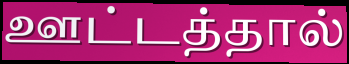
ஊட்டத்தால்